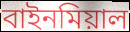
বাইনমিয়াল